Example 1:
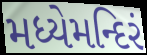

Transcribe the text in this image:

મધ્યેમન્દિરં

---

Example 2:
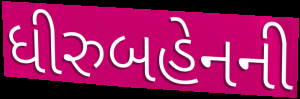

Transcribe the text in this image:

ધીરુબહેનની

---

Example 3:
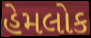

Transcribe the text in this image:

હેમલોક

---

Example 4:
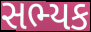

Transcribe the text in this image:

સભ્યક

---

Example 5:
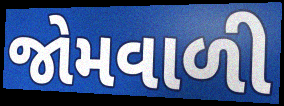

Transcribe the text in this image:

જોમવાળી